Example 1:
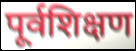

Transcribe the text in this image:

पूर्वशिक्षण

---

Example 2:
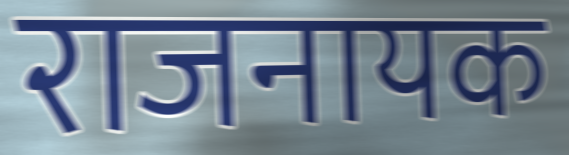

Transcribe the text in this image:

राजनायक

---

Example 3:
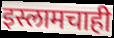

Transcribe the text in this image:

इस्लामचाही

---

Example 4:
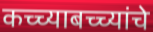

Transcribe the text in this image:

कच्च्याबच्च्यांचे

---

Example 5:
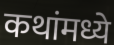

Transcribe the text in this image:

कथांमध्ये